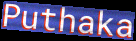
Puthaka